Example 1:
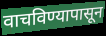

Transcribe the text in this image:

वाचविण्यापासून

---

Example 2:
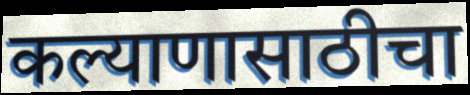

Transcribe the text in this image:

कल्याणासाठीचा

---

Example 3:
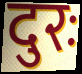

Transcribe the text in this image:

दुरः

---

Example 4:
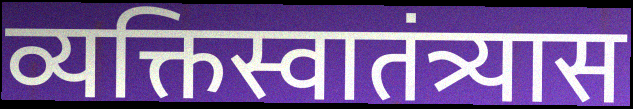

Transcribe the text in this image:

व्यक्तिस्वातंत्र्यास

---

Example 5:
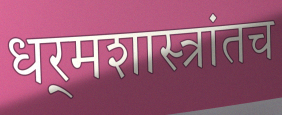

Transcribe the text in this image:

धर्मशास्त्रांतच